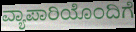
ವ್ಯಾಪಾರಿಯೊಂದಿಗೆ